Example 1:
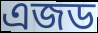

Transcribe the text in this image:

এজড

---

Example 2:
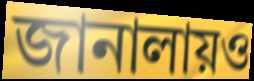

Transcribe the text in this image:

জানালায়ও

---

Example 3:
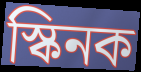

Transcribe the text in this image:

স্কিনক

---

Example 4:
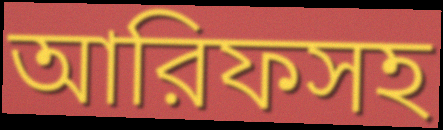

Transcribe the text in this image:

আরিফসহ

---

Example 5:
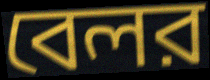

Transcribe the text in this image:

বেলর